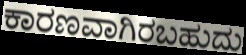
ಕಾರಣವಾಗಿರಬಹುದು